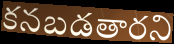
కనబడతారని